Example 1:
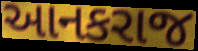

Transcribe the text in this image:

આનકરાજ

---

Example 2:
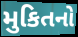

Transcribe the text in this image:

મુકિતનો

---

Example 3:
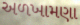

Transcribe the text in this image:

અળખામણા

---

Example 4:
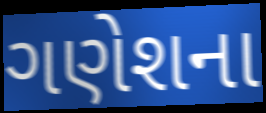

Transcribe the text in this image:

ગણેશના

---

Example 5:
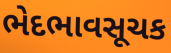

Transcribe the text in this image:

ભેદભાવસૂચક